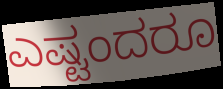
ಎಷ್ಟಂದರೂ